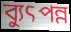
ব্যুৎপন্ন